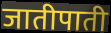
जातीपाती